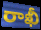
రాఖీ